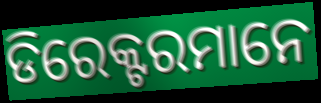
ଡିରେକ୍ଟରମାନେ